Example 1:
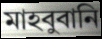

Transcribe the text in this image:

মাহবুবানি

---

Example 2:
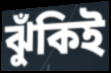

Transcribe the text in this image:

ঝুঁকিই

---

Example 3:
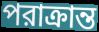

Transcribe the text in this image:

পরাক্রান্ত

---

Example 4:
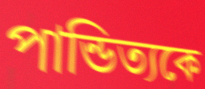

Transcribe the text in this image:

পান্ডিত্যকে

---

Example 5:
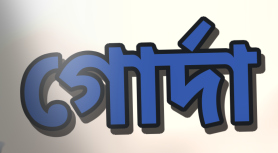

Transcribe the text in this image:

গোর্দা